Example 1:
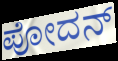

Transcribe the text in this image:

ಪೋದನ್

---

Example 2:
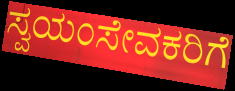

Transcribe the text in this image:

ಸ್ವಯಂಸೇವಕರಿಗೆ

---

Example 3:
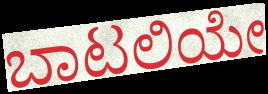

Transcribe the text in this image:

ಬಾಟಲಿಯೇ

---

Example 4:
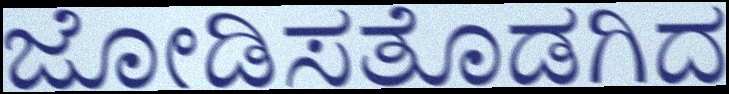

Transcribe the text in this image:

ಜೋಡಿಸತೊಡಗಿದ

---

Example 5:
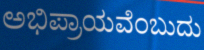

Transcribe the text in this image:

ಅಭಿಪ್ರಾಯವೆಂಬುದು